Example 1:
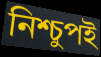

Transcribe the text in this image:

নিশ্চুপই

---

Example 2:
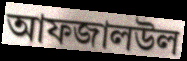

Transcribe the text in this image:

আফজালউল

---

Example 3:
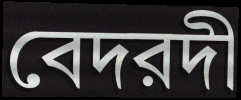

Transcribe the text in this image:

বেদরদী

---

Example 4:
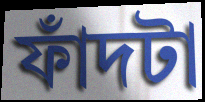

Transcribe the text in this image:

ফাঁদটা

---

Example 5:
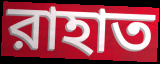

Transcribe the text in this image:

রাহাত